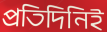
প্রতিদিনিই